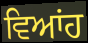
ਵਿਆਂਹ